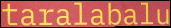
taralabalu